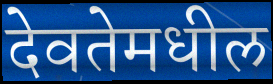
देवतेमधील